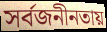
সর্বজনীনতায়